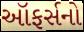
ઑફર્સનો